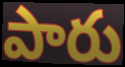
పారు